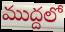
ముద్దలో